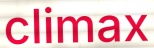
climax